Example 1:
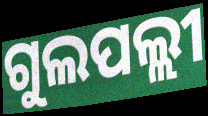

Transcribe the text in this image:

ଗୁଲପଲ୍ଲୀ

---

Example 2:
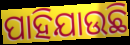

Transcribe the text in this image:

ପାହିଯାଉଛି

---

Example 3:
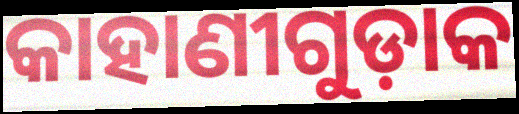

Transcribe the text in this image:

କାହାଣୀଗୁଡ଼ାକ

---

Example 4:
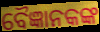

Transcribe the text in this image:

ବୈଜ୍ଞାନକଙ୍କ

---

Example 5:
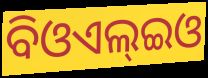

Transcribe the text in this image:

ବିଓଏଲ୍ଇଓ